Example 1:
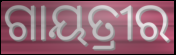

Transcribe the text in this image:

ଗାୟତ୍ରୀର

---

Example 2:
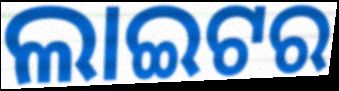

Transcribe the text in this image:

ଲାଇଟର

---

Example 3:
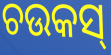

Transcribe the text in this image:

ଚଉକସ୍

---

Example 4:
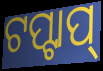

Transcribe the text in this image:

ଟପ୍ଟାପ୍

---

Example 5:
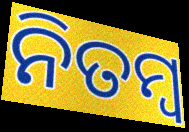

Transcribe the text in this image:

ନିତମ୍ବ